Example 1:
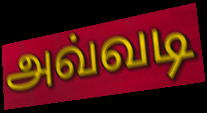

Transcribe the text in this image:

அவ்வடி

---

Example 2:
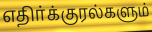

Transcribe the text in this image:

எதிர்க்குரல்களும்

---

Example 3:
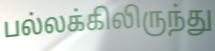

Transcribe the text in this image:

பல்லக்கிலிருந்து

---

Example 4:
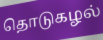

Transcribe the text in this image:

தொடுகழல்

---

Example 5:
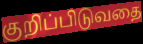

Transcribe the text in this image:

குறிப்பிடுவதை